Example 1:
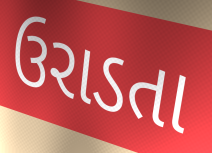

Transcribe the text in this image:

ઉરાડતા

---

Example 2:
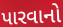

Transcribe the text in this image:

પારવાનો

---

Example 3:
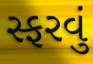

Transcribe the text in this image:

સ્ફરવું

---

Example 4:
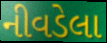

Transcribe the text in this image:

નીવડેલા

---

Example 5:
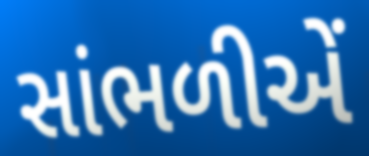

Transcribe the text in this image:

સાંભળીએં